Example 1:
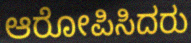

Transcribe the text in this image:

ಆರೋಪಿಸಿದರು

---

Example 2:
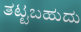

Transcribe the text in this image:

ತಟ್ಟಬಹುದು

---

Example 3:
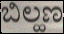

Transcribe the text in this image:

ಬಿಲ್ಹಣ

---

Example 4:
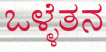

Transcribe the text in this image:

ಒಳ್ಳೆತನ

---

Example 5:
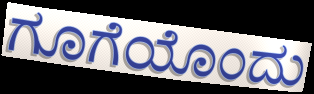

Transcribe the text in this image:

ಗೂಗೆಯೊಂದು